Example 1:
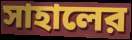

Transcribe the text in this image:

সাহালের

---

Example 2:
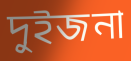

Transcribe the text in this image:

দুইজনা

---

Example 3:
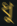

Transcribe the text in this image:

ধু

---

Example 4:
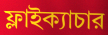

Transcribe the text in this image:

ফ্লাইক্যাচার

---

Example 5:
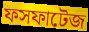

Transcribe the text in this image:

ফসফাটেজ